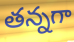
తన్నగా